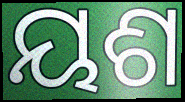
ୟଶ